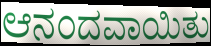
ಆನಂದವಾಯಿತು